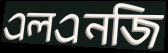
এলএনজি